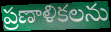
ప్రణాళికలను